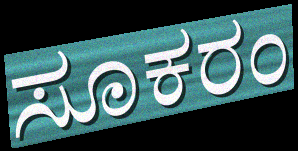
ಸೂಕರಂ